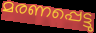
മരണപ്പെട്ടു